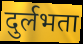
दुर्लभता